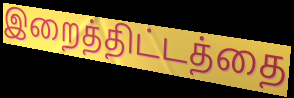
இறைத்திட்டத்தை